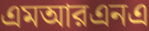
এমআরএনএ